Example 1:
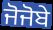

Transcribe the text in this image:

ਜੋਜੋਬੇ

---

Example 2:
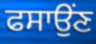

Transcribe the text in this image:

ਫਸਾਉਂਣ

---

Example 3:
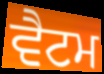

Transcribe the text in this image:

ਵੈਟਮ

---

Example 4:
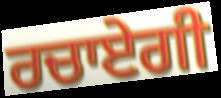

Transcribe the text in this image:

ਰਚਾਏਗੀ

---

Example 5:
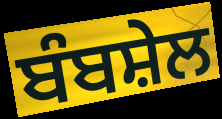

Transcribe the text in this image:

ਬੰਬਸ਼ੇਲ